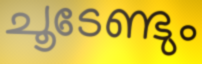
ചൂടേണ്ടും